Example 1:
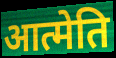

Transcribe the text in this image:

आत्मेति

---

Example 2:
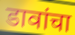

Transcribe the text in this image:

डावांचा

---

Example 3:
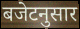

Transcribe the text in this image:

बजेटनुसार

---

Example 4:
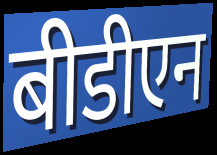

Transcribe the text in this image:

बीडीएन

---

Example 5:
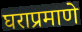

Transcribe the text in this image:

घराप्रमाणे